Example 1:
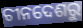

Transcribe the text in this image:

ଚୀନଦେଶରୁ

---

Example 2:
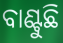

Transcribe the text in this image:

ବାଣ୍ଟୁଛି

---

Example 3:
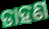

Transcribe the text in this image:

ଡାହଣ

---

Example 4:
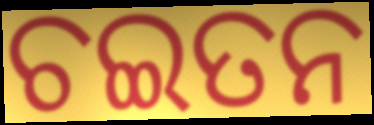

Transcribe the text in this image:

ଚଇତନ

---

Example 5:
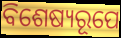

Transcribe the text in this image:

ବିଶେଷ୍ୟରୂପେ